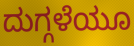
ದುಗ್ಗಳೆಯೂ